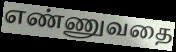
எண்ணுவதை